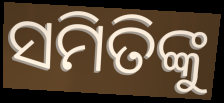
ସମିତିଙ୍କୁ